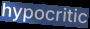
hypocritic